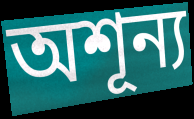
অশূন্য